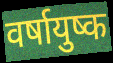
वर्षायुष्क